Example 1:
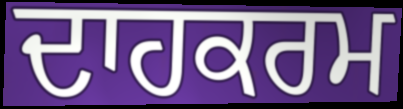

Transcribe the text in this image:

ਦਾਹਕਰਮ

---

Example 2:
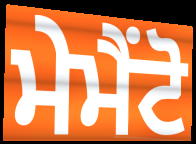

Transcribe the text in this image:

ਮੇਮੈਂਟੋ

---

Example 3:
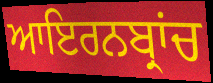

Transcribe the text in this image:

ਆਇਰਨਬ੍ਰਾਂਚ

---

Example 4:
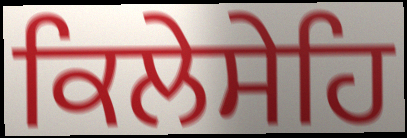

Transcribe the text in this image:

ਕਿਲੇਸੇਹਿ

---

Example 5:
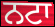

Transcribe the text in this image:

ਨਟਾ